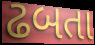
ઢબતા